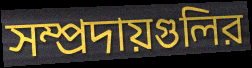
সম্প্রদায়গুলির